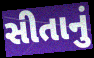
સીતાનું